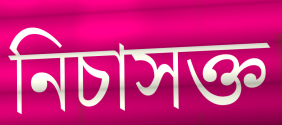
নিচাসক্ত